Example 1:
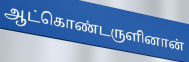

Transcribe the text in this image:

ஆட்கொண்டருளினான்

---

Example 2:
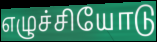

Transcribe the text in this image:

எழுச்சியோடு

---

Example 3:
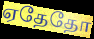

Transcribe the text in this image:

ஏதேதோ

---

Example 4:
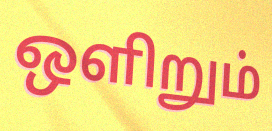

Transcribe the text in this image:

ஒளிறும்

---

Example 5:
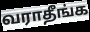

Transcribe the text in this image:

வராதீங்க